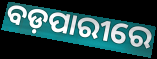
ବଡ଼ପାରୀରେ